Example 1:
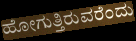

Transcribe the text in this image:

ಹೋಗುತ್ತಿರುವರೆಂದು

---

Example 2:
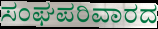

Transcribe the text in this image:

ಸಂಘಪರಿವಾರದ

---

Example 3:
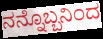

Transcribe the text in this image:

ನನ್ನೊಬ್ಬನಿಂದ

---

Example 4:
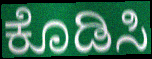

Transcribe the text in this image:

ಕೊಡಿಸಿ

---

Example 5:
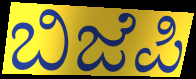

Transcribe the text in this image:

ಬಿಜೆಪಿ